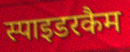
स्पाइडरकैम